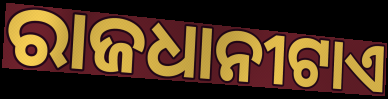
ରାଜଧାନୀଟାଏ